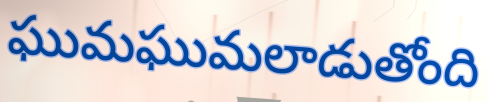
ఘుమఘుమలాడుతోంది